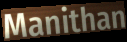
Manithan